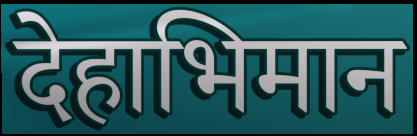
देहाभिमान